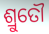
ଶ୍ରୁତୌ